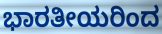
ಭಾರತೀಯರಿಂದ